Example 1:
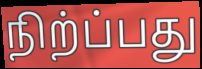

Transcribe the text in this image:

நிற்ப்பது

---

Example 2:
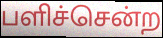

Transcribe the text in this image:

பளிச்சென்ற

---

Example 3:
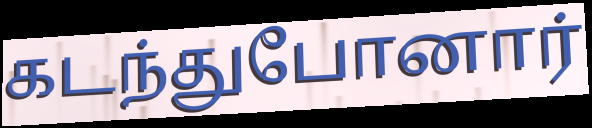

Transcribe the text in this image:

கடந்துபோனார்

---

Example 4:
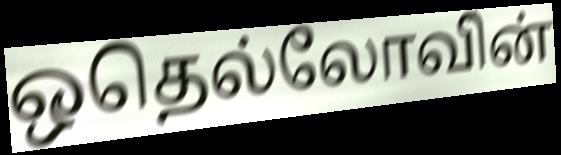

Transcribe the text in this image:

ஒதெல்லோவின்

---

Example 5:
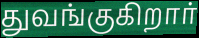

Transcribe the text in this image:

துவங்குகிறார்